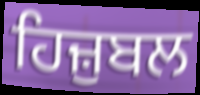
ਹਿਜ਼ੁਬਲ